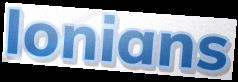
Ionians